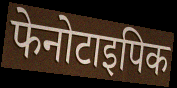
फेनोटाइपिक